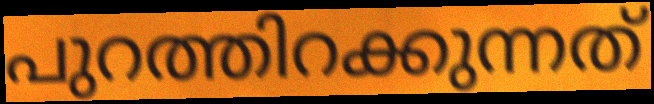
പുറത്തിറക്കുന്നത്